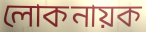
লোকনায়ক